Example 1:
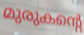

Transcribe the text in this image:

മുരുകന്റെ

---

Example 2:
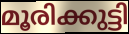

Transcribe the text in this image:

മൂരിക്കുട്ടി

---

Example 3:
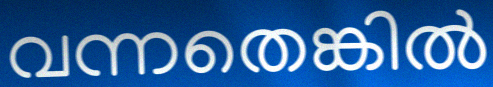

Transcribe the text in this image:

വന്നതെങ്കിൽ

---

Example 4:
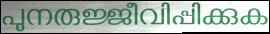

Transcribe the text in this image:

പുനരുജ്ജീവിപ്പിക്കുക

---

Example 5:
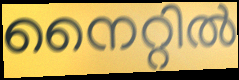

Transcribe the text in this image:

നൈറ്റിൽ